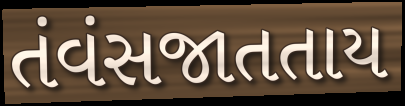
તંવંસજાતતાય